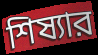
শিষ্যার